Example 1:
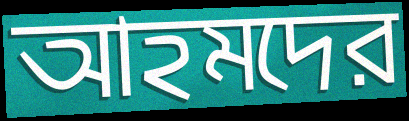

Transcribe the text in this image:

আহমদের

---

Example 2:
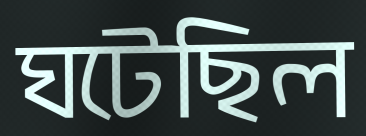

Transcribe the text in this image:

ঘটেছিল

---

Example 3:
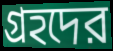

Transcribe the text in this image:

গ্রহদের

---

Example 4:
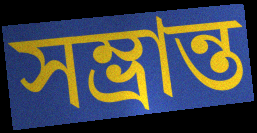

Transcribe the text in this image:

সম্ভ্রান্ত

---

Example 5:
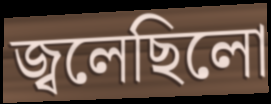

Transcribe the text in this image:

জ্বলেছিলো